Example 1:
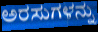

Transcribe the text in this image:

ಅರಸುಗಳನ್ನು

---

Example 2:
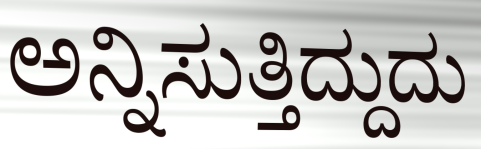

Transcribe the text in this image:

ಅನ್ನಿಸುತ್ತಿದ್ದುದು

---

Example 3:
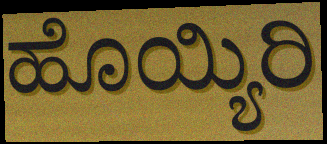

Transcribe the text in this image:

ಹೊಯ್ಯಿರಿ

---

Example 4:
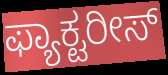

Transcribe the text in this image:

ಫ್ಯಾಕ್ಟರೀಸ್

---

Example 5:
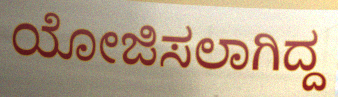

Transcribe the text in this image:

ಯೋಜಿಸಲಾಗಿದ್ದ